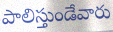
పాలిస్తుండేవారు